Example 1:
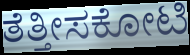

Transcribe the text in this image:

ತೆತ್ತೀಸಕೋಟಿ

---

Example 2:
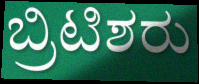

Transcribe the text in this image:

ಬ್ರಿಟಿಶರು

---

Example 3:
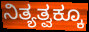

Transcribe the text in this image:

ನಿತ್ಯತ್ವಕ್ಕೂ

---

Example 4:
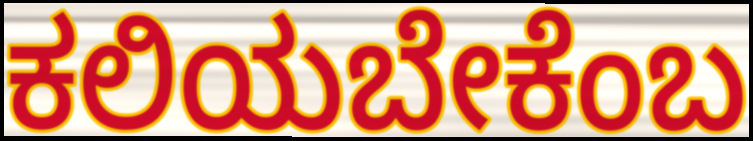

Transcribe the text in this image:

ಕಲಿಯಬೇಕೆಂಬ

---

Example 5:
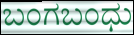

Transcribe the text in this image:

ಬಂಗಬಂಧು